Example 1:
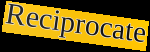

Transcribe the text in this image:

Reciprocate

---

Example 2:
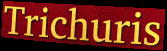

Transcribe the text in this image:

Trichuris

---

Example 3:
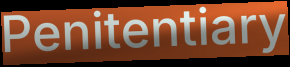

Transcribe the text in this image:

Penitentiary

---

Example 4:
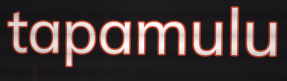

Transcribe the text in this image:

tapamulu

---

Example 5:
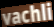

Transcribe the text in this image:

vachli